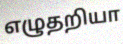
எழுதறியா